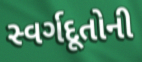
સ્વર્ગદૂતોની